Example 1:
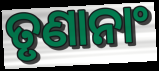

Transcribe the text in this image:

ତୃଣାନାଂ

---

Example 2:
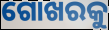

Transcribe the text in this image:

ଗୋଖରକୁ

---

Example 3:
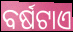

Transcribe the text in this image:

ବର୍ଷଟାଏ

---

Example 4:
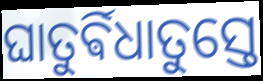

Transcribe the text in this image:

ଘାତୁର୍ଵିଧାତୁସ୍ତେ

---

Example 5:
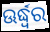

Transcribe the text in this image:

ଊର୍ଦ୍ଧ୍ଵର